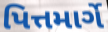
પિત્તમાર્ગે